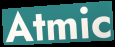
Atmic